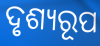
ଦୃଶ୍ୟରୂପ